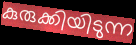
കുരുക്കിയിടുന്ന